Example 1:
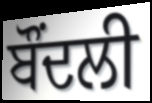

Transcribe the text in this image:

ਬੌਂਦਲੀ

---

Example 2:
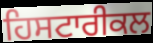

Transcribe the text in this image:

ਹਿਸਟਾਰੀਕਲ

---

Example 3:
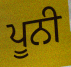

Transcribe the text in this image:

ਪੂਨੀ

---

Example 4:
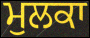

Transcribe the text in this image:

ਮੁਲਕਾ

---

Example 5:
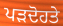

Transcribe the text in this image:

ਪੜਦੋਹਤੇ